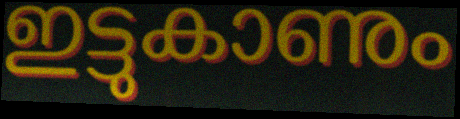
ഇട്ടുകാണും